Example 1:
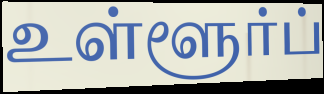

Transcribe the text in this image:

உள்ளூர்ப்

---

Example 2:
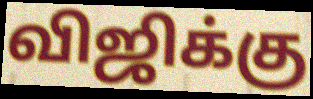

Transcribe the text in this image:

விஜிக்கு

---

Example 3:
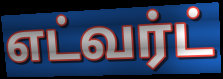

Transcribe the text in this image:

எட்வர்ட்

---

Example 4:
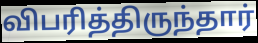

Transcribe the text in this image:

விபரித்திருந்தார்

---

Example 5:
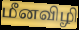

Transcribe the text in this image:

மீனவிழி